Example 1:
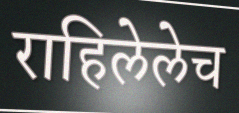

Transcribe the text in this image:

राहिलेलेच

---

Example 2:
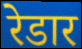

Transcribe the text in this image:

रेडार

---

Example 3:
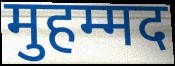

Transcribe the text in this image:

मुहम्मद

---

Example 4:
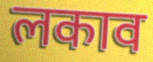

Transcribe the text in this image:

लकाव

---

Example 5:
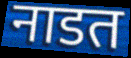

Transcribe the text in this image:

नाडत